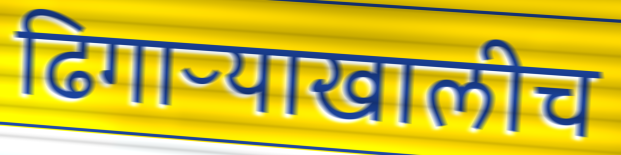
ढिगाऱ्याखालीच